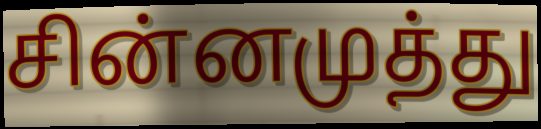
சின்னமுத்து